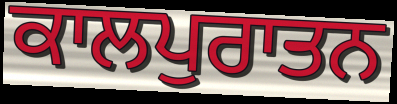
ਕਾਲਪੁਰਾਤਨ